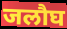
जलौघ